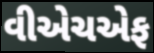
વીએચએફ